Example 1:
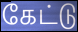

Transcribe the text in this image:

கேட்டு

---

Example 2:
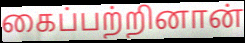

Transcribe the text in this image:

கைப்பற்றினான்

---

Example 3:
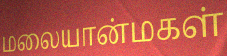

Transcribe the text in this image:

மலையான்மகள்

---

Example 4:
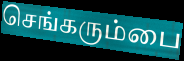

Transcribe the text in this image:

செங்கரும்பை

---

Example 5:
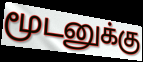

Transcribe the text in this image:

மூடனுக்கு